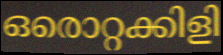
ഒരൊറ്റക്കിളി